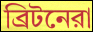
ব্রিটনেরা